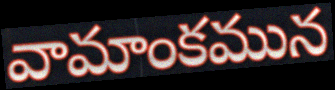
వామాంకమున